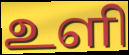
உளி